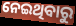
ନେଇଥିବାରୁ